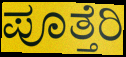
ಪೂತ್ತೆರಿ